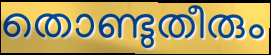
തൊണ്ടുതീരും